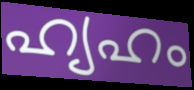
ഹ്യഹം